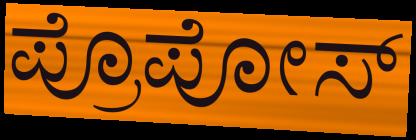
ಪ್ರೊಪೋಸ್